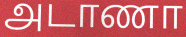
அடாணா